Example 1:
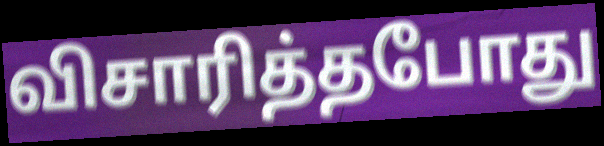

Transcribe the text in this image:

விசாரித்தபோது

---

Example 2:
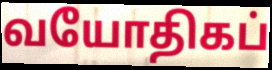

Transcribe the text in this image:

வயோதிகப்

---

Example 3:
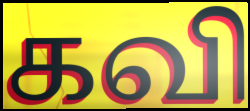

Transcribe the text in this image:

கவி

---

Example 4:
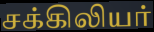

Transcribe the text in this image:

சக்கிலியர்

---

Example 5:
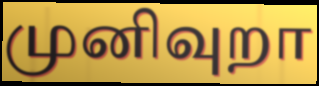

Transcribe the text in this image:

முனிவுறா